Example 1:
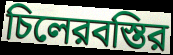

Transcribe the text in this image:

চিলেরবস্তির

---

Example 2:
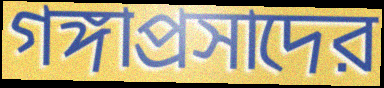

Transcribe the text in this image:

গঙ্গাপ্রসাদের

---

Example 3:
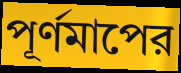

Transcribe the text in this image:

পূর্ণমাপের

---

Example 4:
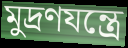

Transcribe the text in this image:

মুদ্রণযন্ত্রে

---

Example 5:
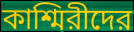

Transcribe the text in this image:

কাশ্মিরীদের